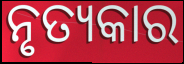
ନୃତ୍ୟକାର